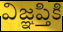
విజ్ఞప్తికి